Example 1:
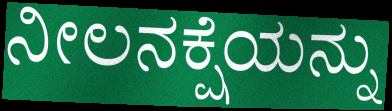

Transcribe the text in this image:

ನೀಲನಕ್ಷೆಯನ್ನು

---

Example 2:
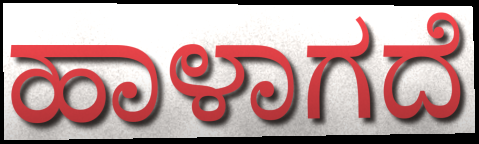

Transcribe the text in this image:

ಹಾಳಾಗದೆ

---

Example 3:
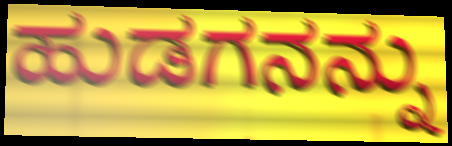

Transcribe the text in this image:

ಹುಡಗನನ್ನು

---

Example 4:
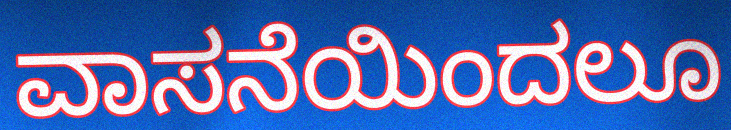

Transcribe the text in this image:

ವಾಸನೆಯಿಂದಲೂ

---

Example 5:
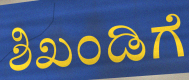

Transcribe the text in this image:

ಶಿಖಂಡಿಗೆ